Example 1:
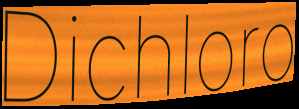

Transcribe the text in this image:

Dichloro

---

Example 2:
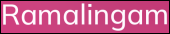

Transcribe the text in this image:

Ramalingam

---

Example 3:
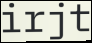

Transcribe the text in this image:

irjt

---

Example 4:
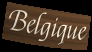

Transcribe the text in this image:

Belgique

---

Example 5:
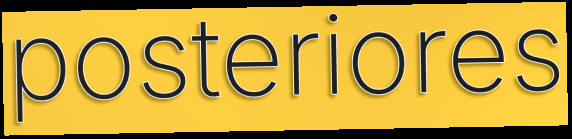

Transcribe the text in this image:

posteriores